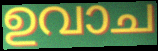
ഉവാച